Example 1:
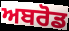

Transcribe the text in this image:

ਅਬਰੋਡ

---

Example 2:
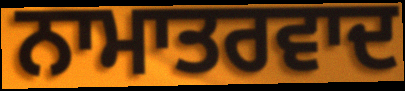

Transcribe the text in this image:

ਨਾਮਾਤਰਵਾਦ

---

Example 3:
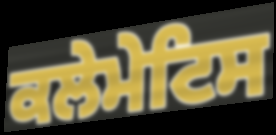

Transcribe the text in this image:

ਕਲੇਮੇਟਿਸ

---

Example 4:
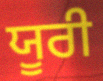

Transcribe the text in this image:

ਯੂਰੀ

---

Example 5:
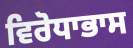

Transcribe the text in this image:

ਵਿਰੋਧਾਭਾਸ